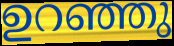
ഉറഞ്ഞു